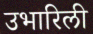
उभारिली